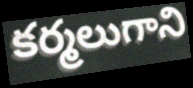
కర్మలుగాని